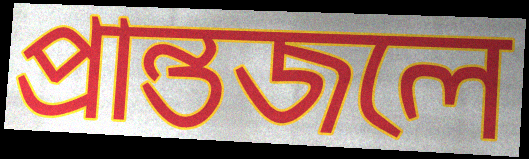
প্রান্তজলে